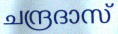
ചന്ദ്രദാസ്